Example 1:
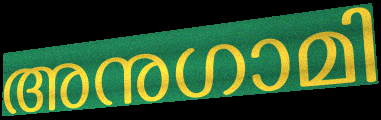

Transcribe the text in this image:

അനുഗാമി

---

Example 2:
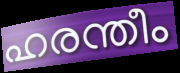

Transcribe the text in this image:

ഹരന്തീം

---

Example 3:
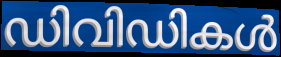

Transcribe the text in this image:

ഡിവിഡികൾ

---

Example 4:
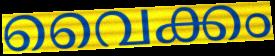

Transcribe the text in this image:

വൈക്കം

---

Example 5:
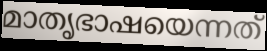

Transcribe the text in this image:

മാതൃഭാഷയെന്നത്